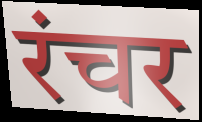
रंचर